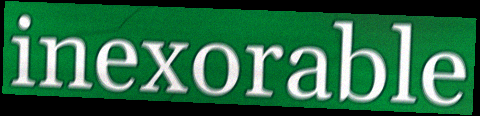
inexorable